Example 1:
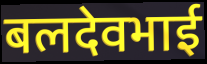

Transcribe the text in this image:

बलदेवभाई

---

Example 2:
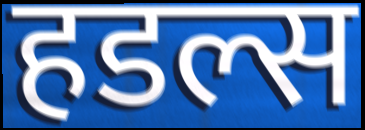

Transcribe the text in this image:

हडल्स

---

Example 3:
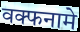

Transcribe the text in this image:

वक्फनामे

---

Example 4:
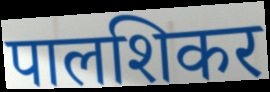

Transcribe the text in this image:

पालशिकर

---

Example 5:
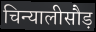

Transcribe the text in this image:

चिन्यालीसौड़